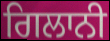
ਗਿਲਾਨੀ